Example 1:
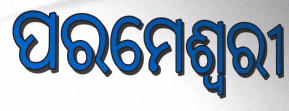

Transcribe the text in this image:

ପରମେଶ୍ୱରୀ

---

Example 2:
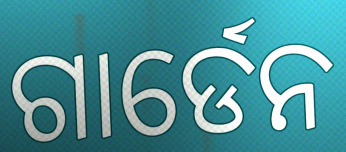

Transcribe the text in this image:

ଗାର୍ଡେନ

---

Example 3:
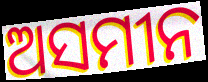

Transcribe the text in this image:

ଅସମୀନ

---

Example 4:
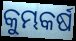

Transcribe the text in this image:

କୁମ୍ଭକର୍ଷ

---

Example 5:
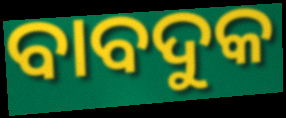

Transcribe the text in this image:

ବାବଦୁକ